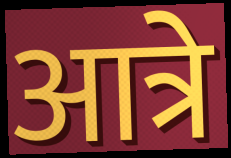
आत्रे